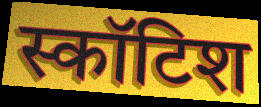
स्कॉटिश